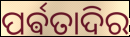
ପର୍ଵତାଦିର